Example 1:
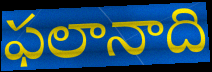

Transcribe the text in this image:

ఫలానాది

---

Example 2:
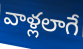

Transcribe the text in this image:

వాళ్లలాగే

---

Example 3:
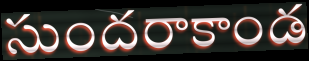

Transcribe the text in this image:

సుందరాకాండ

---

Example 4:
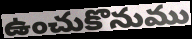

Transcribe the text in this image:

ఉంచుకొనుము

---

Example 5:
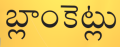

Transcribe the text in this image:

బ్లాంకెట్లు